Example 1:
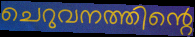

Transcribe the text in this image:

ചെറുവനത്തിന്റെ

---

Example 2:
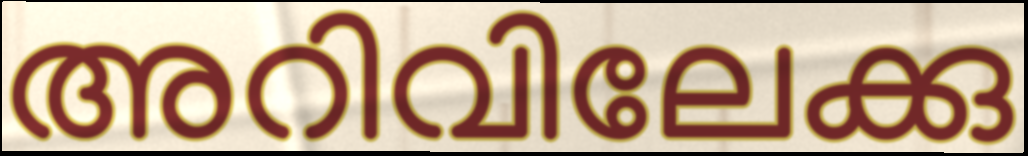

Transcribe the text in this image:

അറിവിലേക്കു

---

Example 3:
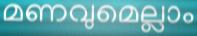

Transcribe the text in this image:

മണവുമെല്ലാം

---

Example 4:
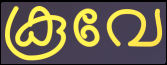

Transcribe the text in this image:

കൂവേ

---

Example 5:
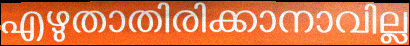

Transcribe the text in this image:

എഴുതാതിരിക്കാനാവില്ല